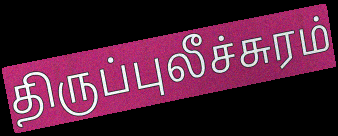
திருப்புலீச்சுரம்